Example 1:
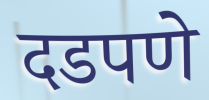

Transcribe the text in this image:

दडपणे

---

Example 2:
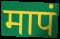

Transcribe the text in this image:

मापं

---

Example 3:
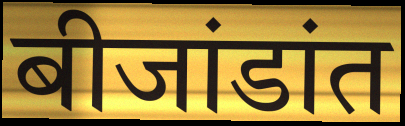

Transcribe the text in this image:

बीजांडांत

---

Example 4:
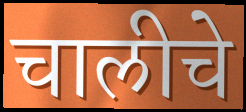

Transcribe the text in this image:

चालीचे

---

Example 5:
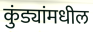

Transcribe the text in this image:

कुंड्यांमधील